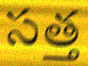
సత్త